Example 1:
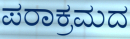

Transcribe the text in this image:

ಪರಾಕ್ರಮದ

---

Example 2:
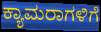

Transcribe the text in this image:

ಕ್ಯಾಮರಾಗಳಿಗೆ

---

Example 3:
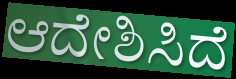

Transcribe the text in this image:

ಆದೇಶಿಸಿದೆ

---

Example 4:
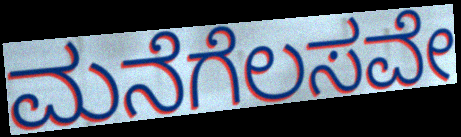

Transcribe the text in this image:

ಮನೆಗೆಲಸವೇ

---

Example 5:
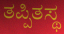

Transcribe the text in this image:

ತಪ್ಪಿತಸ್ಥ